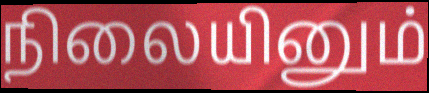
நிலையினும்